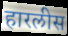
हारलीस